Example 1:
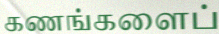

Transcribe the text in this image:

கணங்களைப்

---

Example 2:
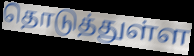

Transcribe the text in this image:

தொடுத்துள்ள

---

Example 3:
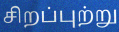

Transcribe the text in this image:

சிறப்புற்று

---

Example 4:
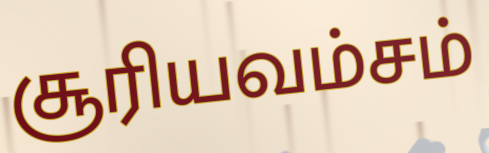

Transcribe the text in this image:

சூரியவம்சம்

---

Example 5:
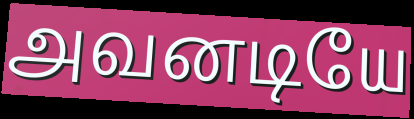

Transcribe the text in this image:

அவனடியே